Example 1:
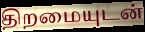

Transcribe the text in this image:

திறமையுடன்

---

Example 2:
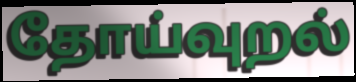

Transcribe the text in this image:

தோய்வுறல்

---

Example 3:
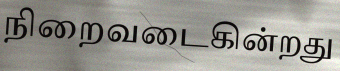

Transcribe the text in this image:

நிறைவடைகின்றது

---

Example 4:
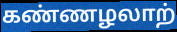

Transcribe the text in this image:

கண்ணழலாற்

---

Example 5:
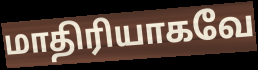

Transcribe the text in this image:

மாதிரியாகவே